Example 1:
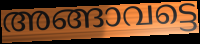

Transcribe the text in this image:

അങ്ങാവട്ടെ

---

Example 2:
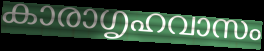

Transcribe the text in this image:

കാരാഗൃഹവാസം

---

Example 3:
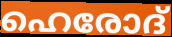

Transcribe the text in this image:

ഹെരോദ്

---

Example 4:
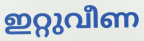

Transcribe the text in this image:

ഇറ്റുവീണ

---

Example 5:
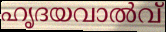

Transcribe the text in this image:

ഹൃദയവാൽവ്